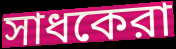
সাধকেরা